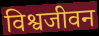
विश्वजीवन